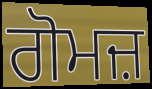
ਗੋਮਜ਼